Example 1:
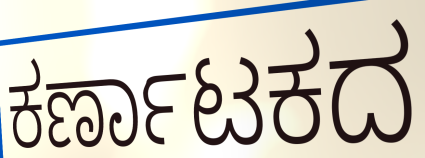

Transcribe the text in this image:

ಕರ್ಣಾಟಕದ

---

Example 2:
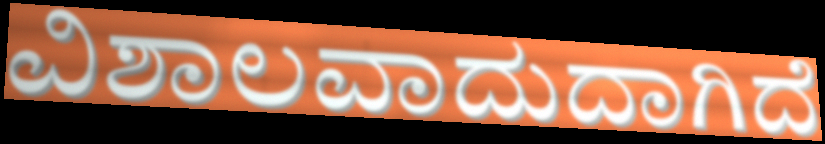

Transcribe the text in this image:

ವಿಶಾಲವಾದುದಾಗಿದೆ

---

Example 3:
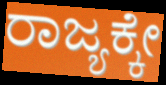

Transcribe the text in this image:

ರಾಜ್ಯಕ್ಕೇ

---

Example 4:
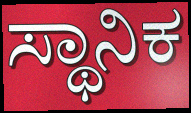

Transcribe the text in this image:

ಸ್ಥಾನಿಕ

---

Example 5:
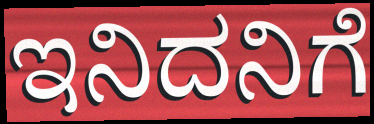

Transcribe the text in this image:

ಇನಿದನಿಗೆ